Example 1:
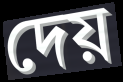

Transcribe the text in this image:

দেয়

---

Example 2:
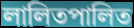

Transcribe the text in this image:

লালিতপালিত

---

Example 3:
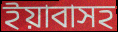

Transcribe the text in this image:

ইয়াবাসহ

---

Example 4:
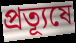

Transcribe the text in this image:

প্রত্যূষে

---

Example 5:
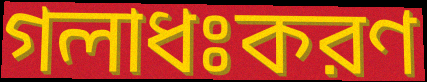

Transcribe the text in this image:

গলাধঃকরণ